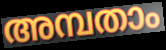
അമ്പതാം